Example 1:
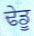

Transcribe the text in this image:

ਢੇਡੂ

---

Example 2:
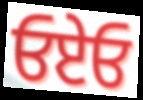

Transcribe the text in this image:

ਓਏਓ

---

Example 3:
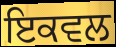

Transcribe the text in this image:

ਇਕਵਲ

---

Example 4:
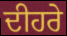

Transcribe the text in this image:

ਦੀਹਰੇ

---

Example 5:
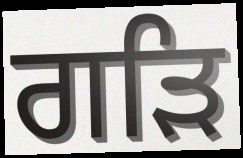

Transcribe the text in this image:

ਗੜਿ